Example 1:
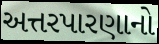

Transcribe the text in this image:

અત્તરપારણાનો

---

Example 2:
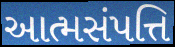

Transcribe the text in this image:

આત્મસંપત્તિ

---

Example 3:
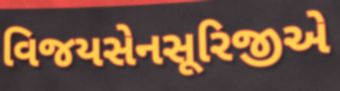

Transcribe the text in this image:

વિજયસેનસૂરિજીએ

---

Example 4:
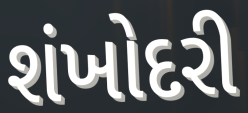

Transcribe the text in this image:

શંખોદરી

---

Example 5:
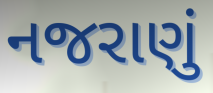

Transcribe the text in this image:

નજરાણું